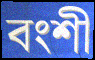
বংশী